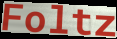
Foltz